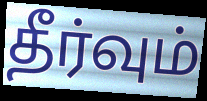
தீர்வும்